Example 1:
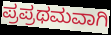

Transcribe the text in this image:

ಪ್ರಪ್ರಥಮವಾಗಿ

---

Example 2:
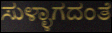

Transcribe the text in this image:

ಸುಳ್ಳಾಗದಂತೆ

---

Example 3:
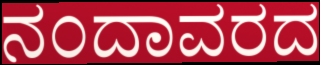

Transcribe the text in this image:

ನಂದಾವರದ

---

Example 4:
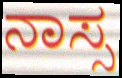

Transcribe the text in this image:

ನಾಸ್ಸ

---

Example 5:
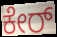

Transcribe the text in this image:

ಕೇರ್